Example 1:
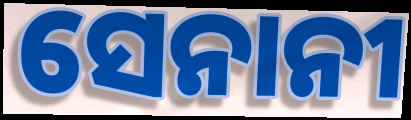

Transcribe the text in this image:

ସେନାନୀ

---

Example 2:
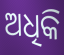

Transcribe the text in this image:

ଅଧିକି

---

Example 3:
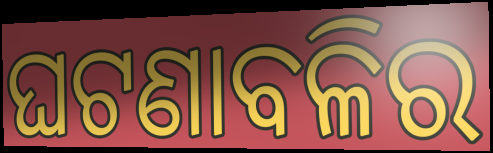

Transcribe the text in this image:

ଘଟଣାବଳିର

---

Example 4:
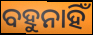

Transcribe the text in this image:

ବହୁନାହିଁ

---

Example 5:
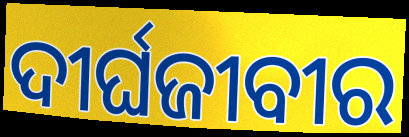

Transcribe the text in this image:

ଦୀର୍ଘଜୀବୀର